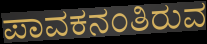
ಪಾವಕನಂತಿರುವ